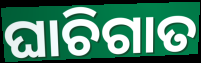
ଘାଚିଗାତ